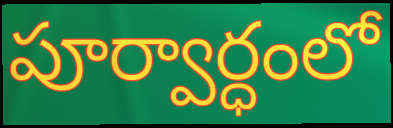
పూర్వార్ధంలో